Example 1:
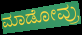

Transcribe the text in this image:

ಮಾಡೋವ್ರು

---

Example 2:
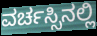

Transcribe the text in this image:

ವರ್ಚಸ್ಸಿನಲ್ಲಿ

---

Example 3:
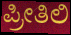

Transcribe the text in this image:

ಪ್ರೀತಿಲಿ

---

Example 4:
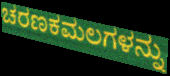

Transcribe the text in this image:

ಚರಣಕಮಲಗಳನ್ನು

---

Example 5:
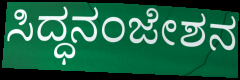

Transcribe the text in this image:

ಸಿದ್ಧನಂಜೇಶನ